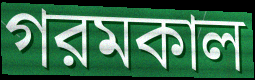
গরমকাল